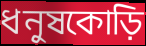
ধনুষকোড়ি